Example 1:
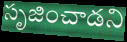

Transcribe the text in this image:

సృజించాడని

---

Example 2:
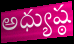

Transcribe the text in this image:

అధ్యుష్ఠ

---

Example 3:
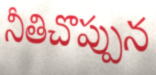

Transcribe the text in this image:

నీతిచొప్పున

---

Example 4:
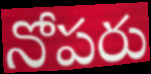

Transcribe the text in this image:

నోపరు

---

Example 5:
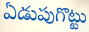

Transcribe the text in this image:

ఏడుపుగొట్టు